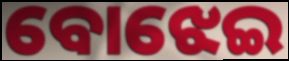
ବୋଝେଇ